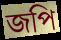
জপি